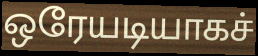
ஒரேயடியாகச்